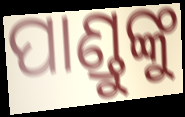
ପାଣ୍ଡୁଙ୍କୁ